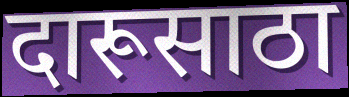
दारूसाठा